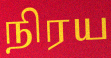
நிரய